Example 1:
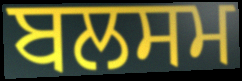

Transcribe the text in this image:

ਬਲਸਮ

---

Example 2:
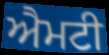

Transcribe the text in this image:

ਐਮਟੀ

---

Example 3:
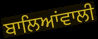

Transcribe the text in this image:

ਬਾਲਿਆਂਵਾਲੀ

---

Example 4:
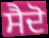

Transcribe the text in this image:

ਸੈਦੋ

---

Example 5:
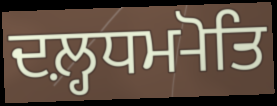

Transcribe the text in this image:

ਦਲ਼੍ਹਧਮ੍ਮੋਤਿ